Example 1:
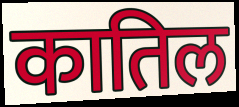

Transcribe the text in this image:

कातिल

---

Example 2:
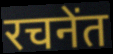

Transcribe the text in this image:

रचनेंत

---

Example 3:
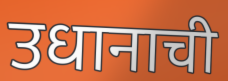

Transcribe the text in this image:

उधानाची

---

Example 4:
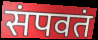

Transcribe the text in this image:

संपवतं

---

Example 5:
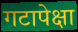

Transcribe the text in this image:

गटापेक्षा